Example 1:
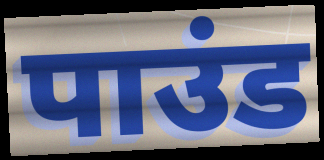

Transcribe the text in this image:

पाउंड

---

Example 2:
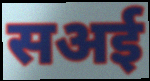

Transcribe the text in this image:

सअई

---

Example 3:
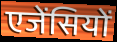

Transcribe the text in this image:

एजेंसियों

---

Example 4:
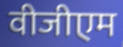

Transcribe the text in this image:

वीजीएम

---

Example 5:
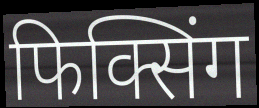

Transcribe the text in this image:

फिक्सिंग